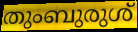
തുംബുരുശ്